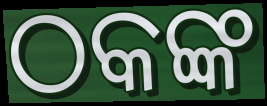
ଠକଙ୍କ